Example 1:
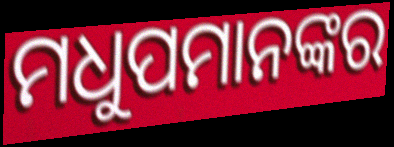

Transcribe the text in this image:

ମଧୁପମାନଙ୍କର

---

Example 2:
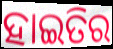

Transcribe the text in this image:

ହାଇତିର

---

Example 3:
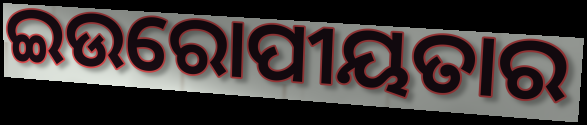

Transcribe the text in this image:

ଇଉରୋପୀୟତାର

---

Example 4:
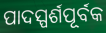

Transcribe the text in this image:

ପାଦସ୍ପର୍ଶପୂର୍ବକ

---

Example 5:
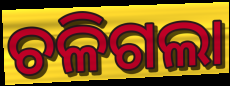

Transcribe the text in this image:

ଚଳିଗଲା